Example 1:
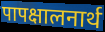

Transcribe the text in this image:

पापक्षालनार्थ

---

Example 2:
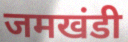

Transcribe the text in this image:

जमखंडी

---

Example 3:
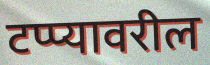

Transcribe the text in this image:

टप्प्यावरील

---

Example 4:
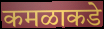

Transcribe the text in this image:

कमळाकडे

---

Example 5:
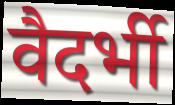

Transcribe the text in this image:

वैदर्भी